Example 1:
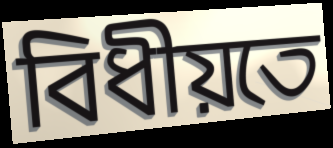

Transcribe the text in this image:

বিধীয়তে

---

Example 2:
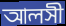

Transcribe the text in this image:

আলসী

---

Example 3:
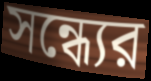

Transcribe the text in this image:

সন্ধ্যের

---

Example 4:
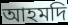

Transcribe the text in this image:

আহমদি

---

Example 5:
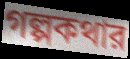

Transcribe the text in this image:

গল্পকথার